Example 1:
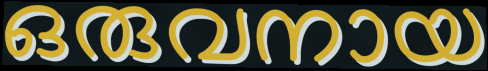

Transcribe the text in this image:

ഒരുവനായ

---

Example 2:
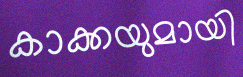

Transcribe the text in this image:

കാക്കയുമായി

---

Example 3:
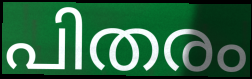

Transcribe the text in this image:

പിതരം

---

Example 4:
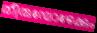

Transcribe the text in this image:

തീരുമ്പോഴേക്കും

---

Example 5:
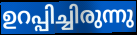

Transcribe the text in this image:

ഉറപ്പിച്ചിരുന്നു